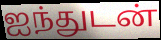
ஐந்துடன்